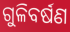
ଗୁଳିବର୍ଷଣ